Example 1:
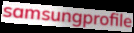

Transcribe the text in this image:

samsungprofile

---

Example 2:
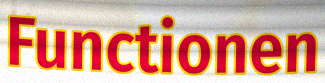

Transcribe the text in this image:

Functionen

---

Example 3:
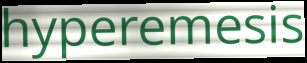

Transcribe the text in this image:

hyperemesis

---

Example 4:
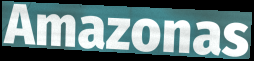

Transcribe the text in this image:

Amazonas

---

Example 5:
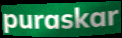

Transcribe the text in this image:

puraskar